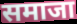
समाजा